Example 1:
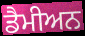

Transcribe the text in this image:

ਡੈਮੀਅਨ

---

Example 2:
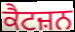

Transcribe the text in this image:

ਕੈਟਜ਼ਨ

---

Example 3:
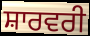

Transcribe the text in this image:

ਸ਼ਾਰਵਰੀ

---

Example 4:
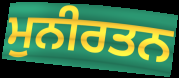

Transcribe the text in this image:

ਮੁਨੀਰਤਨ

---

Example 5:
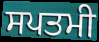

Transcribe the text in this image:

ਸਪਤਮੀ